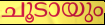
ചൂടായും